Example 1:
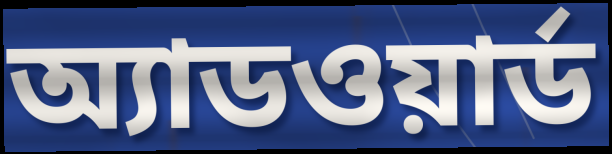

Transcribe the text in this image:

অ্যাডওয়ার্ড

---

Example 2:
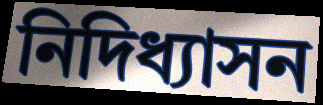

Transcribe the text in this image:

নিদিধ্যাসন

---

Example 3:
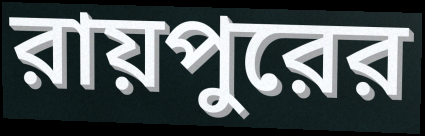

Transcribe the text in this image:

রায়পুরের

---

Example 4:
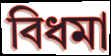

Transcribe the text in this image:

বিধমা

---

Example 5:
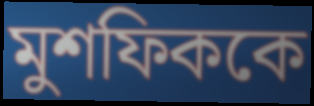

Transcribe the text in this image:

মুশফিককে